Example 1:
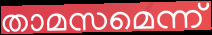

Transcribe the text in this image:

താമസമെന്ന്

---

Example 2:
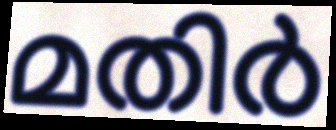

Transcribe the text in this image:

മതിർ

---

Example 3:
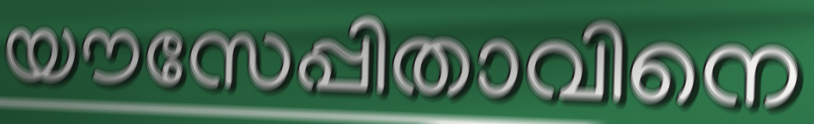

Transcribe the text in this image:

യൗസേപ്പിതാവിനെ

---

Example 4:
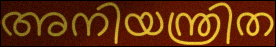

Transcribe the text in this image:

അനിയന്ത്രിത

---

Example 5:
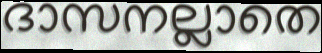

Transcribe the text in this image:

ദാസനല്ലാതെ